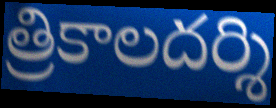
త్రికాలదర్శి